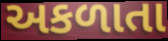
અકળાતા